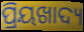
ପ୍ରିୟଖାଦ୍ୟ